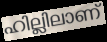
ഹില്ലിലാണ്